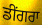
ਡੀਂਗਰਾ